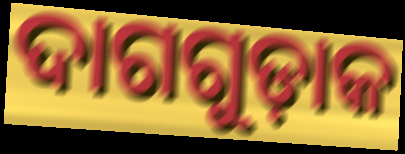
ଦାଗଗୁଡ଼ାକ